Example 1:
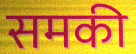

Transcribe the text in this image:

समकी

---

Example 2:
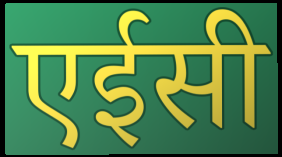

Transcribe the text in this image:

एईसी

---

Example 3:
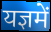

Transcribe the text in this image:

यज्ञमें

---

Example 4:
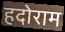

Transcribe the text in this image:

हदोराम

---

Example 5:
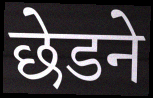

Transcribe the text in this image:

छेडने